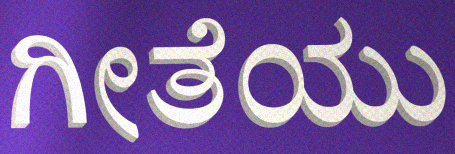
ಗೀತೆಯು